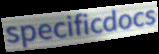
specificdocs